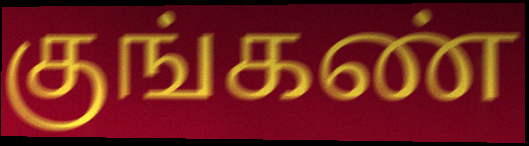
குங்கண்